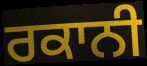
ਰਕਾਨੀ